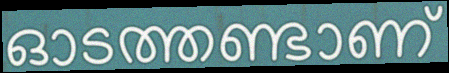
ഓടത്തണ്ടാണ്